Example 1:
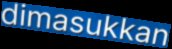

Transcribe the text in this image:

dimasukkan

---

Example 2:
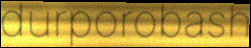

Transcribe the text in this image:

durporobash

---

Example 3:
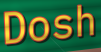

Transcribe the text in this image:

Dosh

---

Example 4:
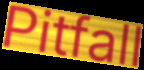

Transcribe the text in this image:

Pitfall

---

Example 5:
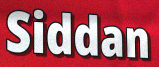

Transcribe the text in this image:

Siddan